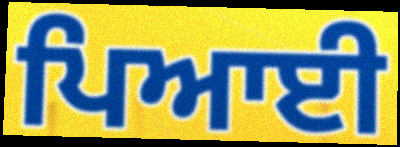
ਪਿਆਈ